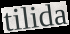
tilida